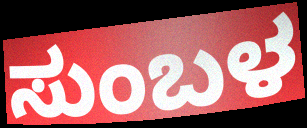
ಸುಂಬಳ